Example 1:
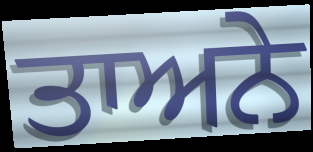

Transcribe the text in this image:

ਤਾਅਨੇ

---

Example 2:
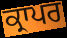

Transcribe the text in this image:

ਕ੍ਰਾਪਰ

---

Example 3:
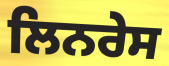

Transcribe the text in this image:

ਲਿਨਰੇਸ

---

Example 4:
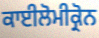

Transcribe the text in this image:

ਕਾਈਲੋਮੀਕ੍ਰੋਨ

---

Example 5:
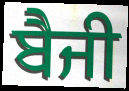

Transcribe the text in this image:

ਬੈਜੀ